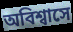
অবিশ্বাসে